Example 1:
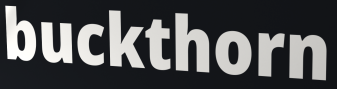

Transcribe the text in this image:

buckthorn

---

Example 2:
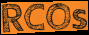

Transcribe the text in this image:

RCOs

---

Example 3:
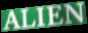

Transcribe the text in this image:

ALIEN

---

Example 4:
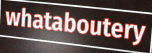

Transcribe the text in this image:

whataboutery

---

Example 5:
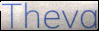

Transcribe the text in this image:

Theva